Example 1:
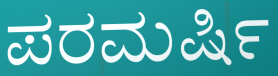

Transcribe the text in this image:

ಪರಮರ್ಷಿ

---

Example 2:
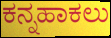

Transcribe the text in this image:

ಕನ್ನಹಾಕಲು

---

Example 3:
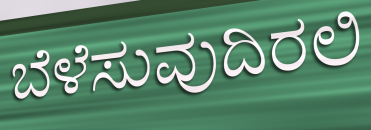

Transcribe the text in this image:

ಬೆಳೆಸುವುದಿರಲಿ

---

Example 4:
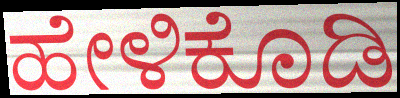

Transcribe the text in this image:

ಹೇಳಿಕೊಡಿ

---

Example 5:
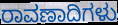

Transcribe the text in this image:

ರಾವಣಾದಿಗಳು